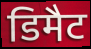
डिमैट